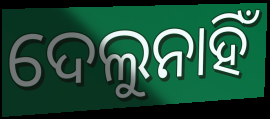
ଦେଲୁନାହିଁ